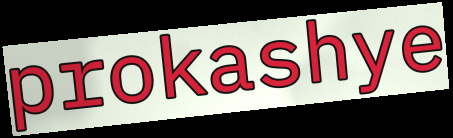
prokashye